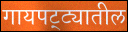
गायपट्ट्यातील